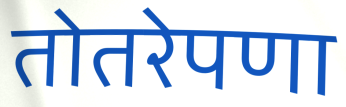
तोतरेपणा